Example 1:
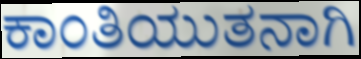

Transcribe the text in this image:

ಕಾಂತಿಯುತನಾಗಿ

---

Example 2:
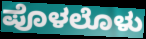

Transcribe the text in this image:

ಪೊಳಲೊಳು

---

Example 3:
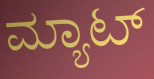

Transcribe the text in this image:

ಮ್ಯಾಟ್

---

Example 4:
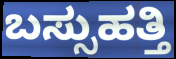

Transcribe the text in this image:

ಬಸ್ಸುಹತ್ತಿ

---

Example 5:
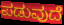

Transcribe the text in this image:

ಪಡುವುದೆ